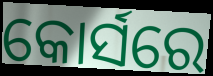
କୋର୍ସରେ